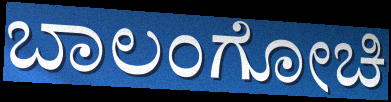
ಬಾಲಂಗೋಚಿ